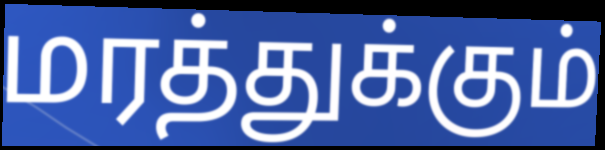
மரத்துக்கும்